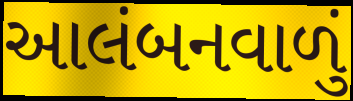
આલંબનવાળું